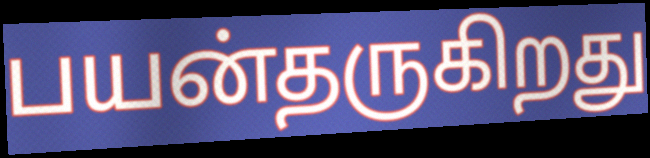
பயன்தருகிறது